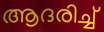
ആദരിച്ച്